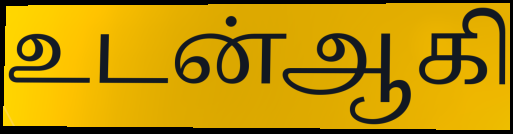
உடன்ஆகி